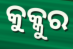
କୁକ୍କୁର